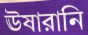
ঊষারানি